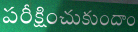
పరీక్షించుకుందాం